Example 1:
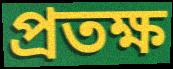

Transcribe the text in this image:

প্রতক্ষ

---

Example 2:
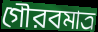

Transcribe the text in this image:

গৌরবমাত্র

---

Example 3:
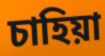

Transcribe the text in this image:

চাহিয়া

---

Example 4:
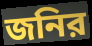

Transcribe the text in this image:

জনির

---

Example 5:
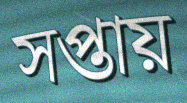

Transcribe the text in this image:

সপ্তায়